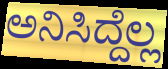
ಅನಿಸಿದ್ದೆಲ್ಲ